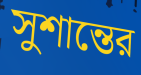
সুশান্তের